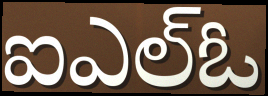
ఐఎల్ఓ